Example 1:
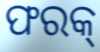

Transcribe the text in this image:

ଫରକ୍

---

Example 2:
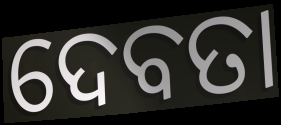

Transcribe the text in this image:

ଦେବତା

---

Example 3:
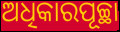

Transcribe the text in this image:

ଅଧିକାରପୂଚ୍ଛା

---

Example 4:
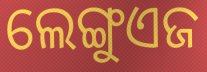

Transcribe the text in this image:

ଲେଙ୍ଗୁଏଜ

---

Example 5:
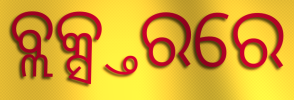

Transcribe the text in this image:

ବ୍ଲକ୍ସ୍ତରରେ